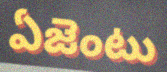
ఏజెంటు